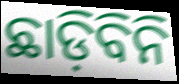
ଛାଡ଼ିବିନି